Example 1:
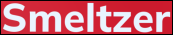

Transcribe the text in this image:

Smeltzer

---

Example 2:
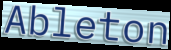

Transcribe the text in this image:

Ableton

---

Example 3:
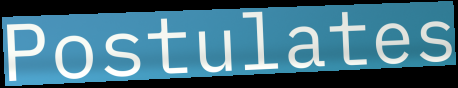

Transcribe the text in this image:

Postulates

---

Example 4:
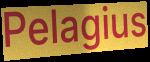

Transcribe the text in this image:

Pelagius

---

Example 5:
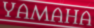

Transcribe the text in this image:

YAMAHA